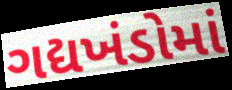
ગદ્યખંડોમાં